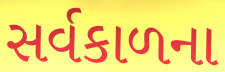
સર્વકાળના